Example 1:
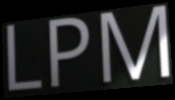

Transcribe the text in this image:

LPM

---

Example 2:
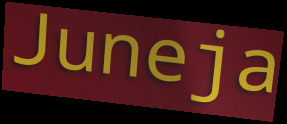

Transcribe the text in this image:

Juneja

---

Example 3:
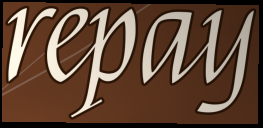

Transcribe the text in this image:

repay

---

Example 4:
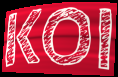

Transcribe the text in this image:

KOI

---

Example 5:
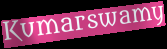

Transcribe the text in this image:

Kumarswamy